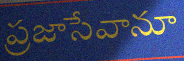
ప్రజాసేవానూ